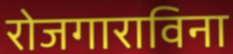
रोजगाराविना